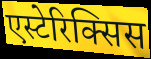
एस्टेरिक्सिस